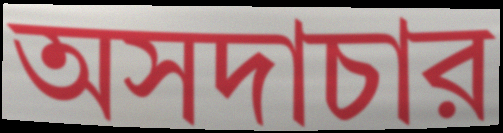
অসদাচার